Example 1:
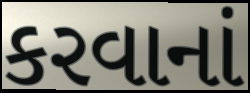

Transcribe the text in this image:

કરવાનાં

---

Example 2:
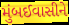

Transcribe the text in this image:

મુંબઈવાસીને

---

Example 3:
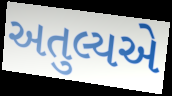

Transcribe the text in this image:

અતુલ્યએ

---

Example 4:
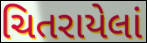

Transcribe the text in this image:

ચિતરાયેલાં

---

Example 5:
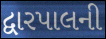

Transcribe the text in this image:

દ્વારપાલની